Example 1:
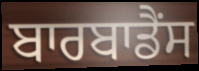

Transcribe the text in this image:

ਬਾਰਬਾਡੈਂਸ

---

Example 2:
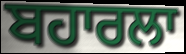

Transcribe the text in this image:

ਬਹਾਰਲਾ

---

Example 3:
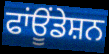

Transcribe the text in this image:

ਫਾਂਊਂਡੇਸ਼ਨ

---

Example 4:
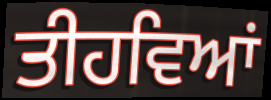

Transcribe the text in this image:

ਤੀਹਵਿਆਂ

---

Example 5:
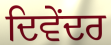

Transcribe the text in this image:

ਦਿਵੇਂਦਰ